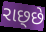
રાછ્છે